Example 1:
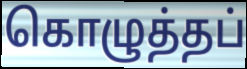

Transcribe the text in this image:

கொழுத்தப்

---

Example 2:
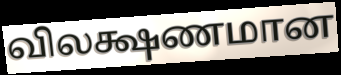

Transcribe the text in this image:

விலக்ஷணமான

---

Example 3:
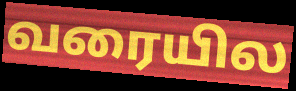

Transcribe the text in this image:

வரையில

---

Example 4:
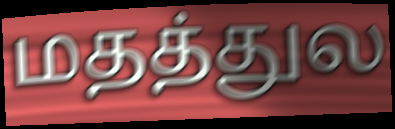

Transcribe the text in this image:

மதத்துல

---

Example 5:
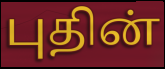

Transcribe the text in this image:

புதின்